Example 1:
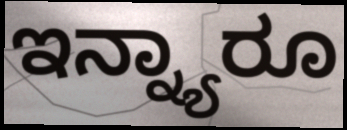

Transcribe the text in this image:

ಇನ್ನ್ಯಾರೂ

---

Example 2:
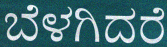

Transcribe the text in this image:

ಬೆಳಗಿದರೆ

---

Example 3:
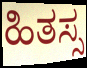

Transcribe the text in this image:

ಹಿತಸ್ಸ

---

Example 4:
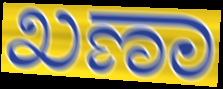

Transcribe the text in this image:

ಖಣಾ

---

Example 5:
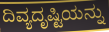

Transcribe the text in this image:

ದಿವ್ಯದೃಷ್ಟಿಯನ್ನು